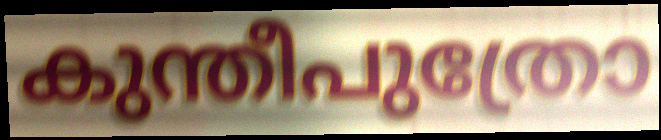
കുന്തീപുത്രോ